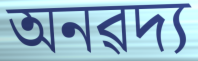
অনৱদ্য